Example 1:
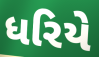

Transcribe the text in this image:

ધરિયે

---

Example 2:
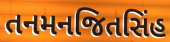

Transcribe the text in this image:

તનમનજિતસિંહ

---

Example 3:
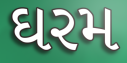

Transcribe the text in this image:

ઘરમ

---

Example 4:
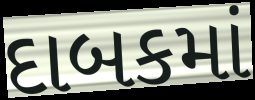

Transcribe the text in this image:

દાબકમાં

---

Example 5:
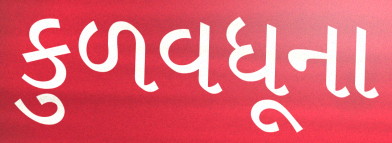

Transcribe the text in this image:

કુળવધૂના